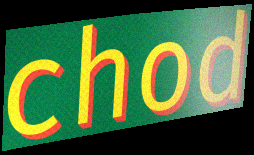
chod